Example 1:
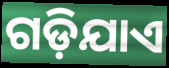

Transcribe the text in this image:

ଗଡ଼ିଯାଏ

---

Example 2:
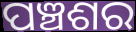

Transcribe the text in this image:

ପଞ୍ଚଶର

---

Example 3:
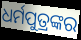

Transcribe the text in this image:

ଧର୍ମପୁତ୍ରଙ୍କର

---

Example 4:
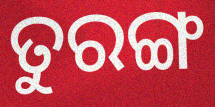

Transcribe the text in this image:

ତୁରଙ୍ଗ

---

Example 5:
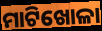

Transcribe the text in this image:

ମାଟିଖୋଳା